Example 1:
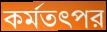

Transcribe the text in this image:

কর্মতৎপর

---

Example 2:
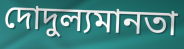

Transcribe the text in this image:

দোদুল্যমানতা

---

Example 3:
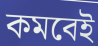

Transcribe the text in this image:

কমবেই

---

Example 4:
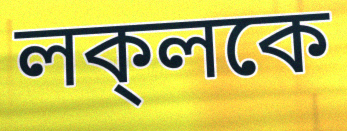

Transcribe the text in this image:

লক্‌লকে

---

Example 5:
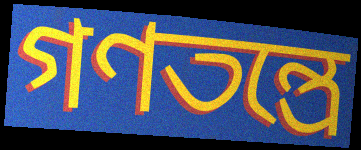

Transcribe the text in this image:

গণতন্ত্রে